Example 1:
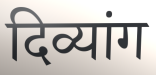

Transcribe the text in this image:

दिव्यांग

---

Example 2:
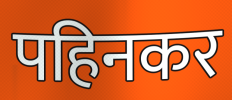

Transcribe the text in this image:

पहिनकर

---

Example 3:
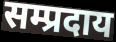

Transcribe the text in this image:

सम्प्रदाय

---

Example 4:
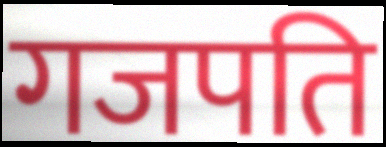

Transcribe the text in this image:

गजपति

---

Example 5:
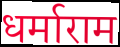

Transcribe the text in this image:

धर्माराम